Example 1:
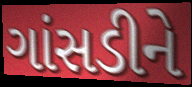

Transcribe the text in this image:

ગાંસડીને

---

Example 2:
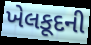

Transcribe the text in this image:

ખેલકૂદની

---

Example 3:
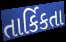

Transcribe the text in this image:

તાર્કિકતા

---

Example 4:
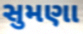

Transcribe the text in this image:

સુમણા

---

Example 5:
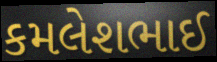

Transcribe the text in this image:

કમલેશભાઈ